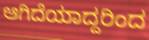
ಆಗಿದೆಯಾದ್ದರಿಂದ